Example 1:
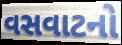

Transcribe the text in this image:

વસવાટનો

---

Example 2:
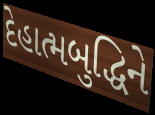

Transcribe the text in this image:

દેહાત્મબુદ્ધિને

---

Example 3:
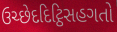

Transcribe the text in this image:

ઉચ્છેદદિટ્ઠિસહગતો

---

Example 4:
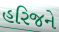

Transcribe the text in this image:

હરિજને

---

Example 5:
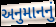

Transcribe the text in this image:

અનુમાનનું